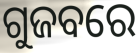
ଗୁଜବରେ